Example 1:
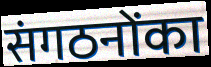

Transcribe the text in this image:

संगठनोंका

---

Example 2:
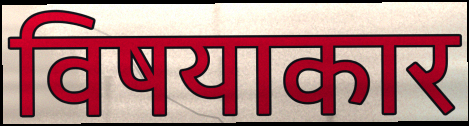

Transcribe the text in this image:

विषयाकार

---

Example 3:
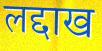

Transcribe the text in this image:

लद्दाख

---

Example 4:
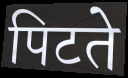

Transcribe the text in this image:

पिटते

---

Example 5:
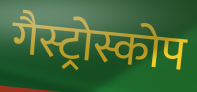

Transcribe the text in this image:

गैस्ट्रोस्कोप